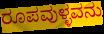
ರೂಪವುಳ್ಳವನು